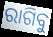
ରାଗିବୁ